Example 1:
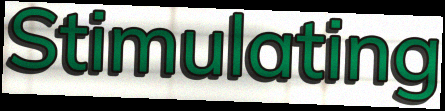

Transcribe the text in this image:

Stimulating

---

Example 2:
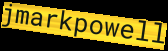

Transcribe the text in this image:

jmarkpowell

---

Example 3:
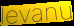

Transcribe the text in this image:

levanu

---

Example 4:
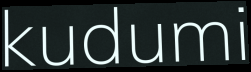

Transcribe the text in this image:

kudumi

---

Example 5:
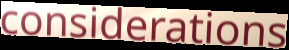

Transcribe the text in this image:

considerations